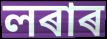
লৰাৰ